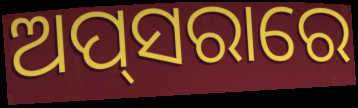
ଅପ୍‌ସରାରେ